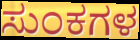
ಸುಂಕಗಳ